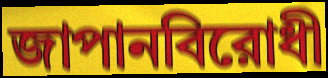
জাপানবিরোধী